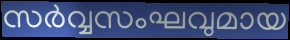
സർവ്വസംഘവുമായ